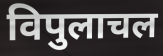
विपुलाचल